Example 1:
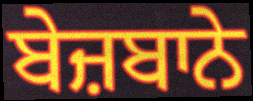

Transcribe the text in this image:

ਬੇਜ਼ਬਾਨੇ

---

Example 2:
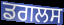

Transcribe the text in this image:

ਡਗਲਸ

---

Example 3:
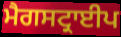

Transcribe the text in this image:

ਮੈਗਸਟ੍ਰਾਈਪ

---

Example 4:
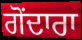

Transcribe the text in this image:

ਗੋਂਦਾਰਾ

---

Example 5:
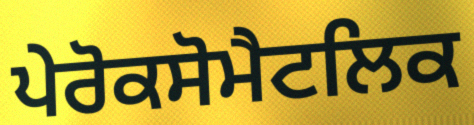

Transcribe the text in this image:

ਪੇਰੋਕਸੋਮੈਟਲਿਕ